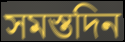
সমস্তদিন